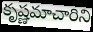
కృష్ణమాచారిని